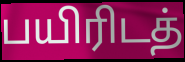
பயிரிடத்